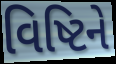
વિષ્ટિને